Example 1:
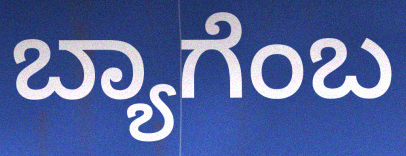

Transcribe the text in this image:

ಬ್ಯಾಗೆಂಬ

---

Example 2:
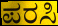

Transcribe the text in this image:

ಪರಸಿ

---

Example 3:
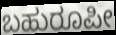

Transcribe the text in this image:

ಬಹುರೂಪೀ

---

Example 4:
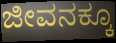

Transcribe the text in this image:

ಜೀವನಕ್ಕೂ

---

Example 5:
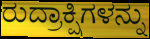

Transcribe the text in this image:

ರುದ್ರಾಕ್ಷಿಗಳನ್ನು